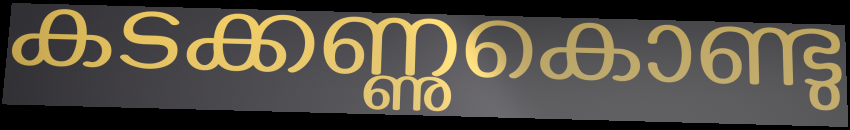
കടക്കണ്ണുകൊണ്ടു